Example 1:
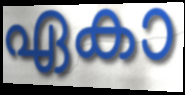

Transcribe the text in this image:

ഏകാ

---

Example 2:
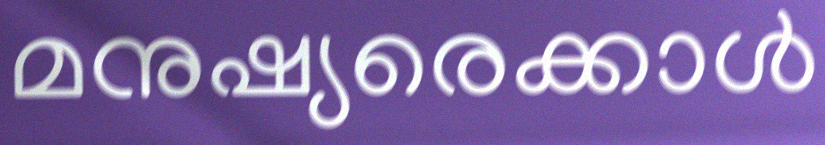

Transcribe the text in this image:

മനുഷ്യരെക്കാൾ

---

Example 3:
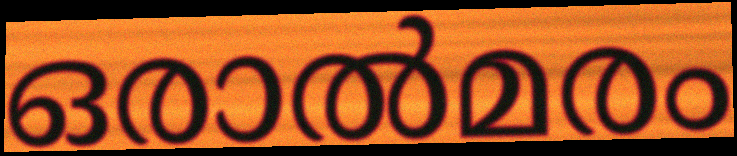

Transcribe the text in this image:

ഒരാൽമരം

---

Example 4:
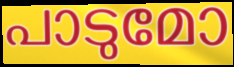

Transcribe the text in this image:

പാടുമോ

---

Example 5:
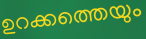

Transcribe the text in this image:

ഉറക്കത്തെയും